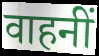
वाहनीं